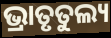
ଭ୍ରାତୃତୁଲ୍ୟ